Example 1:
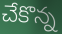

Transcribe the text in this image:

చేకొన్న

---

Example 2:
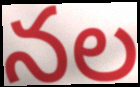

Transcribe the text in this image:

నల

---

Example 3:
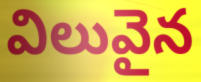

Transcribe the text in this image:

విలువైన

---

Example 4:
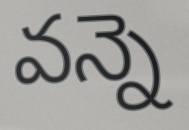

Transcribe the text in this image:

వన్నె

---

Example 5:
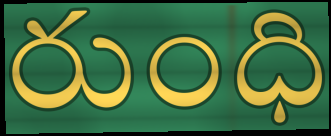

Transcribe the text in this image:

రుంధి